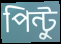
পিন্টু